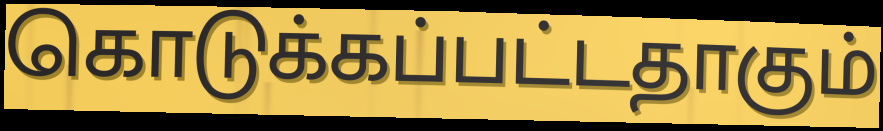
கொடுக்கப்பட்டதாகும்